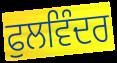
ਫੁਲਵਿੰਦਰ